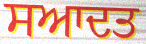
ਸਆਦਤ